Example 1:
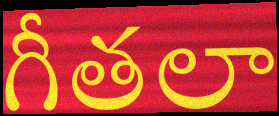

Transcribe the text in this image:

గీతలా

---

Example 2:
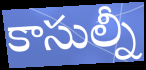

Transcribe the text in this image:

కాసుల్నీ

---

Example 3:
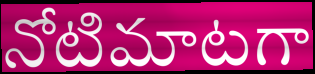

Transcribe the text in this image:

నోటిమాటగా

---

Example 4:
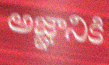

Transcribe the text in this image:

అజ్ఞానికి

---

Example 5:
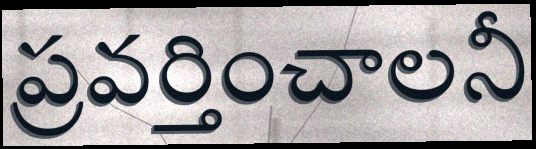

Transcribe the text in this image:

ప్రవర్తించాలనీ